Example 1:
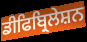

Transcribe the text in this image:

ਡੀਫਿਬ੍ਰਿਲੇਸ਼ਨ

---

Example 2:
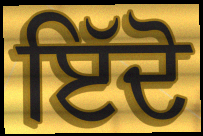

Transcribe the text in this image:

ਇੱਦੋ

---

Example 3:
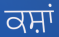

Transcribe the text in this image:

ਕਸ਼ਾਂ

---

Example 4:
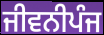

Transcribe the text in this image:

ਜੀਵਨੀਪੰਜ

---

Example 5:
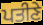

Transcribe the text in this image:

ਪਤੀਣੇ